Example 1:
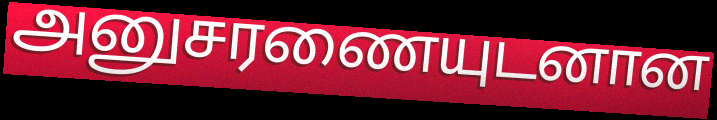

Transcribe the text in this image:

அனுசரணையுடனான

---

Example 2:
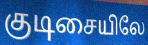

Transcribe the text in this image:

குடிசையிலே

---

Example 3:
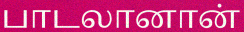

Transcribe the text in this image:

பாடலானான்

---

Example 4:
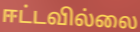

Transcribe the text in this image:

ஈட்டவில்லை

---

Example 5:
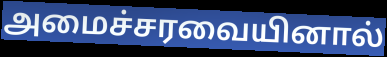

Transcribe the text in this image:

அமைச்சரவையினால்